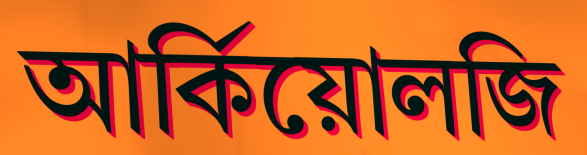
আর্কিয়োলজি